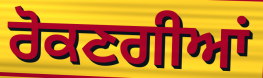
ਰੋਕਣਗੀਆਂ